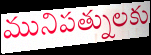
మునిపత్నులకు